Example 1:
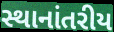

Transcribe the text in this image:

સ્થાનાંતરીય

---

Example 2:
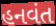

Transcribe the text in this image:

હનવંત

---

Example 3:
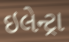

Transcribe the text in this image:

ઇલેન્ટ્રા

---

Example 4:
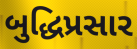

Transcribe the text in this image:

બુદ્ધિપ્રસાર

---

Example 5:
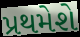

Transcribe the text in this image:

પ્રથમેશે